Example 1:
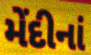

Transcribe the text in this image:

મેંદીનાં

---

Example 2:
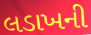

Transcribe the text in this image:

લડાખની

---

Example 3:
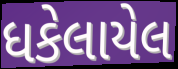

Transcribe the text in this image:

ધકેલાયેલ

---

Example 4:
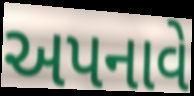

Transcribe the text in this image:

અપનાવે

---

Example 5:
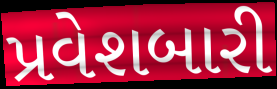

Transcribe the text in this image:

પ્રવેશબારી